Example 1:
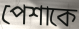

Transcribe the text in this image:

পেশাকে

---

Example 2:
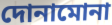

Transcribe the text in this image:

দোনামোনা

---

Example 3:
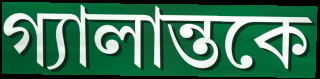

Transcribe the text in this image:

গ্যালান্তকে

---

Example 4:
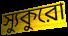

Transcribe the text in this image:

স্যুকুরো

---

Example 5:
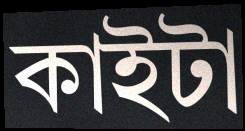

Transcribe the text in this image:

কাইটা